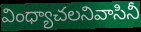
వింధ్యాచలనివాసినీ